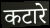
कटारे